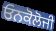
ਓਨਕੋਲੋਜੀ